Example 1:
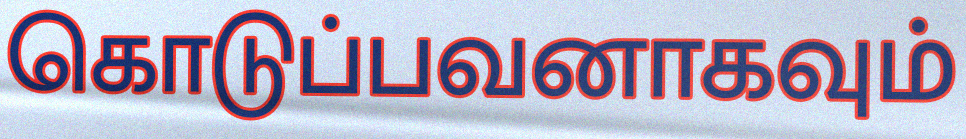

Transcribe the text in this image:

கொடுப்பவனாகவும்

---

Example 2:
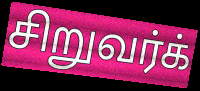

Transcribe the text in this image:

சிறுவர்க்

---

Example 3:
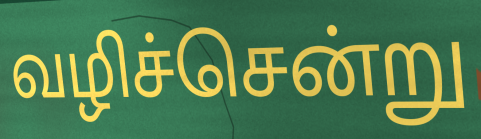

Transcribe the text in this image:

வழிச்சென்று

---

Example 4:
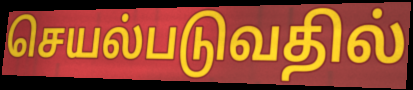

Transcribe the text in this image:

செயல்படுவதில்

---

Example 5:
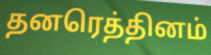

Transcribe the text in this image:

தனரெத்தினம்